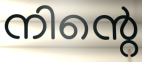
നിന്റെ